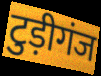
टुड़ीगंज